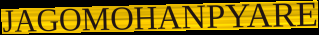
JAGOMOHANPYARE